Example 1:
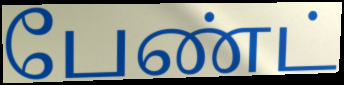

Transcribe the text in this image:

பேண்ட்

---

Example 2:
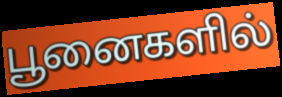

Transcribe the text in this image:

பூனைகளில்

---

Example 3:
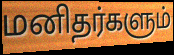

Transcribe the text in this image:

மனிதர்களும்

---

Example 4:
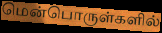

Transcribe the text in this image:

மென்பொருள்களில்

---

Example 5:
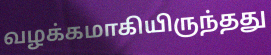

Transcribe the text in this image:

வழக்கமாகியிருந்தது